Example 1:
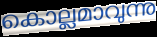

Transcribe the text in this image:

കൊല്ലമാവുന്നു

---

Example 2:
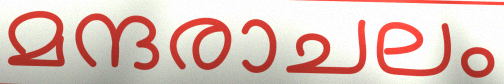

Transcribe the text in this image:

മന്ദരാചലം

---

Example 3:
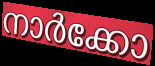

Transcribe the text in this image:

നാർക്കോ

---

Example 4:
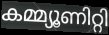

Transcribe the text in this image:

കമ്മ്യൂണിറ്റി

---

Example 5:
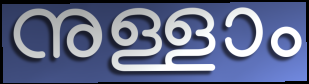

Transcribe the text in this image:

നുള്ളാം